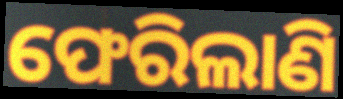
ଫେରିଲାଣି